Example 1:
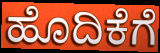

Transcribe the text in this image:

ಹೊದಿಕೆಗೆ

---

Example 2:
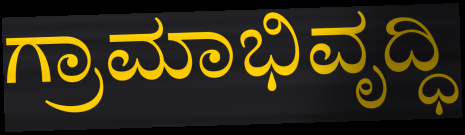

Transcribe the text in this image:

ಗ್ರಾಮಾಭಿವೃದ್ಧಿ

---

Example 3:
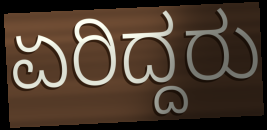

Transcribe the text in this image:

ಏರಿದ್ದರು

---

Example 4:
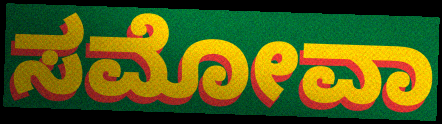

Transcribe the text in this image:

ಸಮೋವಾ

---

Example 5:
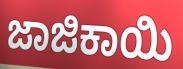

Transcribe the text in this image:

ಜಾಜಿಕಾಯಿ